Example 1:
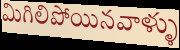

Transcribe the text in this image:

మిగిలిపోయినవాళ్ళు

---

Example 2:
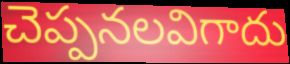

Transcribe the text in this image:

చెప్పనలవిగాదు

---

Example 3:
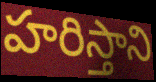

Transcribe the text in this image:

హరిస్తాని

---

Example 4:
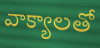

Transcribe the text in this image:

వాక్యాలతో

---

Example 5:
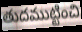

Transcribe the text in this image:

తుదముట్టించి